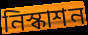
নিস্কাশন